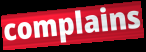
complains